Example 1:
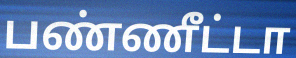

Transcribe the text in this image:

பண்ணீட்டா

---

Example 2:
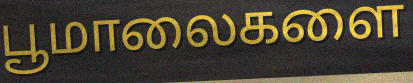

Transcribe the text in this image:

பூமாலைகளை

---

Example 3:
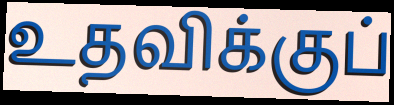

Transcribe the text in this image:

உதவிக்குப்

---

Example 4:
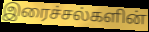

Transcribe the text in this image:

இரைச்சல்களின்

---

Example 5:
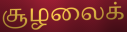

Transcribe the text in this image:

சூழலைக்